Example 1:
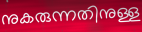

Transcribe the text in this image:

നുകരുന്നതിനുള്ള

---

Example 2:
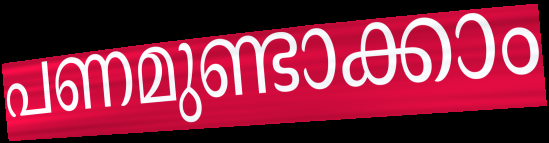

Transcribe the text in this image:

പണമുണ്ടാക്കാം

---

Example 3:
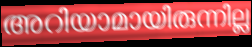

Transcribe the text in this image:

അറിയാമായിരുന്നില്ല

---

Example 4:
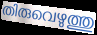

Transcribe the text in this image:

തിരുവെഴുത്തു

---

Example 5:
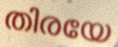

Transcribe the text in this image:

തിരയേ